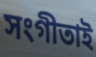
সংগীতাই